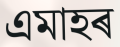
এমাহৰ